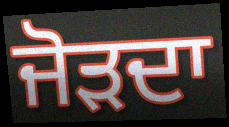
ਜੋੜਦਾ